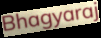
Bhagyaraj